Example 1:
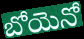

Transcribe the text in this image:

బోయెనో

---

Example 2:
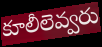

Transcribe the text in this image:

కూలీలెవ్వరు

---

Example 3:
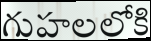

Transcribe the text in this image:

గుహలలోకి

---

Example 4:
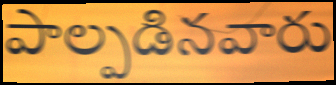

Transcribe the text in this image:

పాల్పడినవారు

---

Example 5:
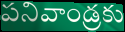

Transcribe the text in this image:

పనివాండ్రకు